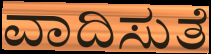
ವಾದಿಸುತೆ